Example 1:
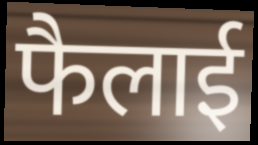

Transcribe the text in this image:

फैलाई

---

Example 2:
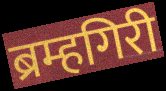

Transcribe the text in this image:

ब्रम्हगिरी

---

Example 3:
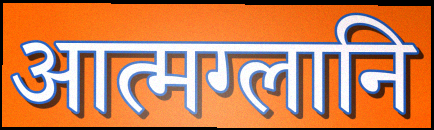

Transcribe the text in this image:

आत्मग्लानि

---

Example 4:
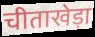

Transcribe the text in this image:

चीताखेड़ा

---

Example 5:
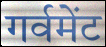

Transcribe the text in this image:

गर्वमेंट